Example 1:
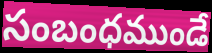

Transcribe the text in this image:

సంబంధముండే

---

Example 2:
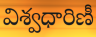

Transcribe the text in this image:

విశ్వధారిణీ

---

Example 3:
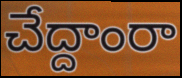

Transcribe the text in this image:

చేద్దాంరా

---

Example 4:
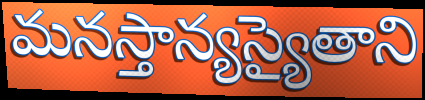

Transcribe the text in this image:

మనస్తాన్యస్యైతాని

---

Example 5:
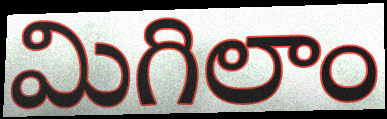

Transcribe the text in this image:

మిగిలాం